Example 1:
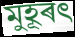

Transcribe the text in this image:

মুহূৰৎ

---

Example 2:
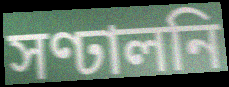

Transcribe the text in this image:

সণ্ঢালনি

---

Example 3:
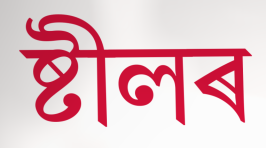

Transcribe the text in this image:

ষ্টীলৰ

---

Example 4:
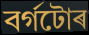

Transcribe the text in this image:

বৰ্গটোৰ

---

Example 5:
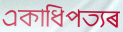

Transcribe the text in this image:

একাধিপত্যৰ